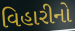
વિહારીનો